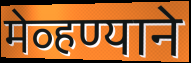
मेव्हण्याने